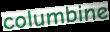
columbine